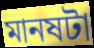
মানষটা